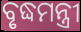
ବୃଦ୍ଧମନ୍ତ୍ରୀ